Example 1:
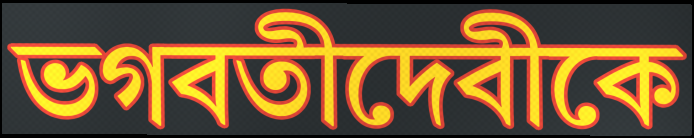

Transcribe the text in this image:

ভগবতীদেবীকে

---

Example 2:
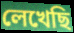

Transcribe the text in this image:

লেখেছি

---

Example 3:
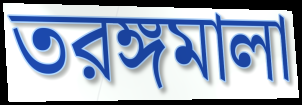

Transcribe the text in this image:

তরঙ্গমালা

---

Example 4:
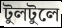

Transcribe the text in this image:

টুলটুলে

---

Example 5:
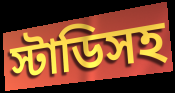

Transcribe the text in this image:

স্টাডিসহ